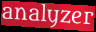
analyzer